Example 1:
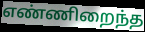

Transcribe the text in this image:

எண்ணிறைந்த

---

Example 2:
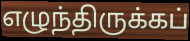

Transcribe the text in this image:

எழுந்திருக்கப்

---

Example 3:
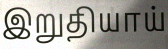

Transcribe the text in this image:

இறுதியாய்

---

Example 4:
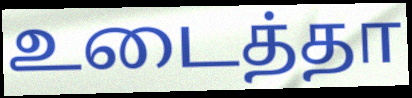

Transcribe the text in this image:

உடைத்தா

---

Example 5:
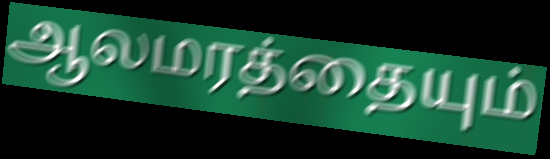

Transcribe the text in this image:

ஆலமரத்தையும்